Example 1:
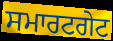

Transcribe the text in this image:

ਸਮਾਰਟਗੇਟ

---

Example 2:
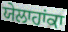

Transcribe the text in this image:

ਯੇਲਾਹਾਂਕਾ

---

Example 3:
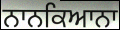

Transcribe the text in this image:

ਨਾਨਕਿਆਨਾ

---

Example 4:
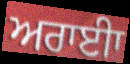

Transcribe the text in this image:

ਅਰਾਈਾ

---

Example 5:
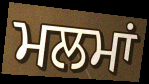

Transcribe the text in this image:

ਮਲਮਾਂ